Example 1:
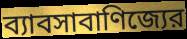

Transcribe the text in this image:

ব্যাবসাবাণিজ্যের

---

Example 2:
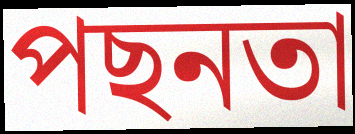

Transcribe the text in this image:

পছনতা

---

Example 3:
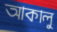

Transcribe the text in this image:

আকালু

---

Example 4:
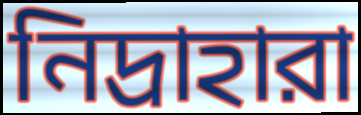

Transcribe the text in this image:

নিদ্রাহারা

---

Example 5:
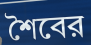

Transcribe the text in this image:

শৈবের